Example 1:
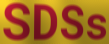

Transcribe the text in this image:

SDSs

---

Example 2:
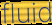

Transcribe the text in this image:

fluid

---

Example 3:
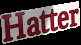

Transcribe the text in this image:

Hatter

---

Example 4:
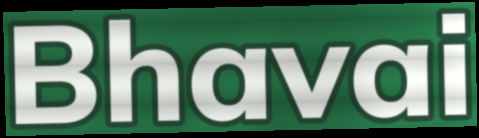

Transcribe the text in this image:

Bhavai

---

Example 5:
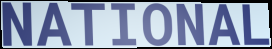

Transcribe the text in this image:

NATIONAL